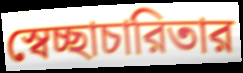
স্বেচ্ছাচারিতার